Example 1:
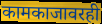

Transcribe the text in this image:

कामकाजावरही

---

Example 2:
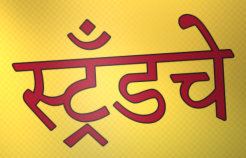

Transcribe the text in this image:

स्ट्रँडचे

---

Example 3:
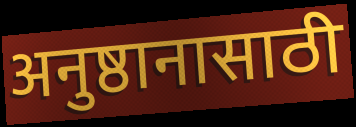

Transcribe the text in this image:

अनुष्ठानासाठी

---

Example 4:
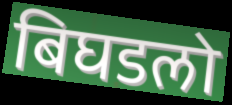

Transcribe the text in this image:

बिघडलो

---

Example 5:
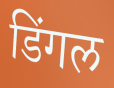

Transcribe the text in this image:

डिंगल